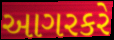
આગરકરે